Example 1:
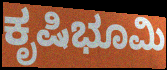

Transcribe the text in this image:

ಕೃಷಿಭೂಮಿ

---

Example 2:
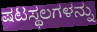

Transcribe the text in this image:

ಷಟಸ್ಥಲಗಳನ್ನು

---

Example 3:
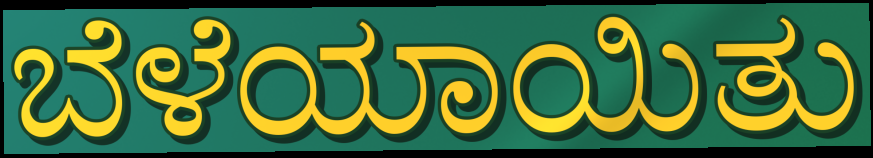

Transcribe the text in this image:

ಬೆಳೆಯಾಯಿತು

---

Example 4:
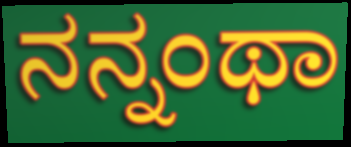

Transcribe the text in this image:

ನನ್ನಂಥಾ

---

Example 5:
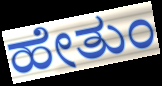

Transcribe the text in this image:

ಹೇತುಂ